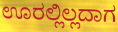
ಊರಲ್ಲಿಲ್ಲದಾಗ